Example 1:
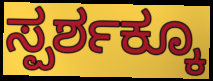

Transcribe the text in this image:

ಸ್ಪರ್ಶಕ್ಕೂ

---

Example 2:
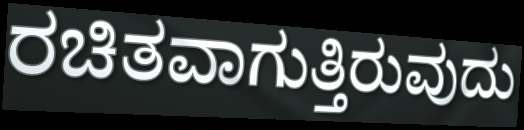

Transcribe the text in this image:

ರಚಿತವಾಗುತ್ತಿರುವುದು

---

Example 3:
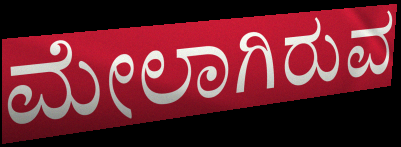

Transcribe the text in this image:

ಮೇಲಾಗಿರುವ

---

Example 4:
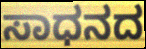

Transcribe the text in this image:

ಸಾಧನದ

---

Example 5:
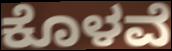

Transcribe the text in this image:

ಕೊಳವೆ